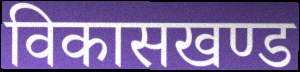
विकासखण्ड